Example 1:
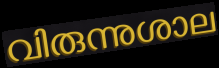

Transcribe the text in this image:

വിരുന്നുശാല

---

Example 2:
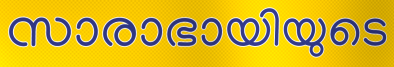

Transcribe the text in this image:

സാരാഭായിയുടെ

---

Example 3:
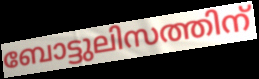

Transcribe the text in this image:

ബോട്ടുലിസത്തിന്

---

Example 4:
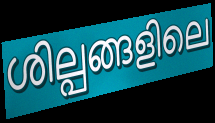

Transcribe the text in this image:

ശില്പങ്ങളിലെ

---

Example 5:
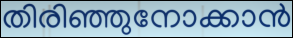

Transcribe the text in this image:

തിരിഞ്ഞുനോക്കാൻ